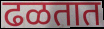
ढळतात